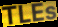
TLEs